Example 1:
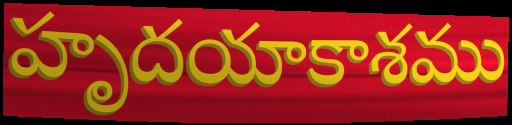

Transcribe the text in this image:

హృదయాకాశము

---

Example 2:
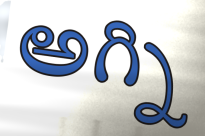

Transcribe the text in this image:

అగ్ని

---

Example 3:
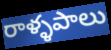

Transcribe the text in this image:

రాళ్ళపాలు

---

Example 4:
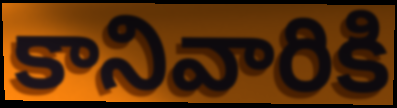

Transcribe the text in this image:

కానివారికి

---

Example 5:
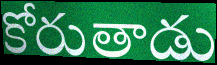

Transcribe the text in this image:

కోరుతాడు